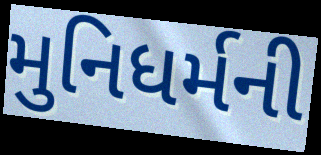
મુનિધર્મની